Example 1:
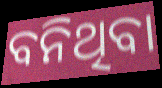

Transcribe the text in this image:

ବନିଥିବା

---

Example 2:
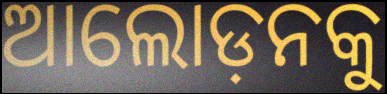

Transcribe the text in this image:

ଆଲୋଡ଼ନକୁ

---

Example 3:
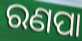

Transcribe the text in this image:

ରଣପା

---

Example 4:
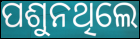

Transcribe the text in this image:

ପଶୁନଥିଲେ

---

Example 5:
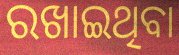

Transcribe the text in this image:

ରଖାଇଥିବା